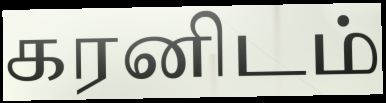
கரனிடம்